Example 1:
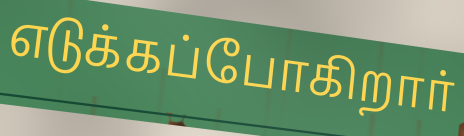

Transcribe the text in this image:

எடுக்கப்போகிறார்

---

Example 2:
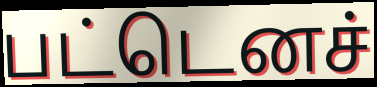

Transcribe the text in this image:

பட்டெனச்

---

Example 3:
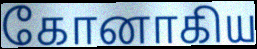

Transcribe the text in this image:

கோனாகிய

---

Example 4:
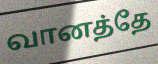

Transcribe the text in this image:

வானத்தே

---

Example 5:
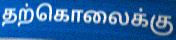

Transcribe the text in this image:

தற்கொலைக்கு